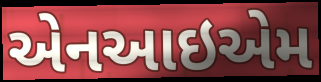
એનઆઇએમ